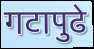
गटापुढे